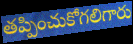
తప్పించుకోగలిగారు